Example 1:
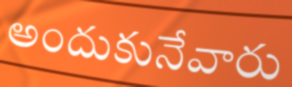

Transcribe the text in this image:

అందుకునేవారు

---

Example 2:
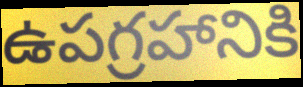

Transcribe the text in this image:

ఉపగ్రహానికి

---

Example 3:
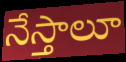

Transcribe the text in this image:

నేస్తాలూ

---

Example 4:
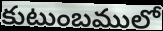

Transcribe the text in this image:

కుటుంబములో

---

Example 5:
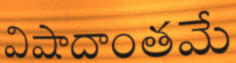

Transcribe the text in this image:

విషాదాంతమే